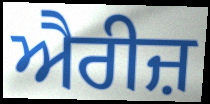
ਐਰੀਜ਼